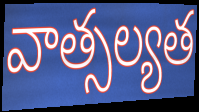
వాత్సల్యత